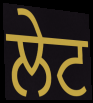
ਲੇਟ